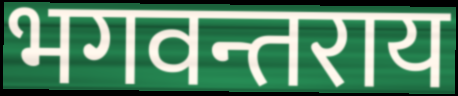
भगवन्तराय